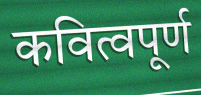
कवित्वपूर्ण